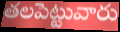
తలపెట్టువారు